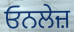
ਓਨਲੇਜ਼